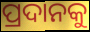
ପ୍ରଦାନକୁ